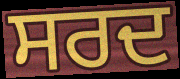
ਸਰਦ